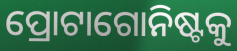
ପ୍ରୋଟାଗୋନିଷ୍ଟକୁ